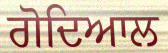
ਗੋਦਿਆਲ